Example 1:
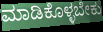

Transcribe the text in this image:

ಮಾಡಿಕೊಳ್ಳಬೇಕು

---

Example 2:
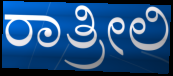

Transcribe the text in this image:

ರಾತ್ರೀಲಿ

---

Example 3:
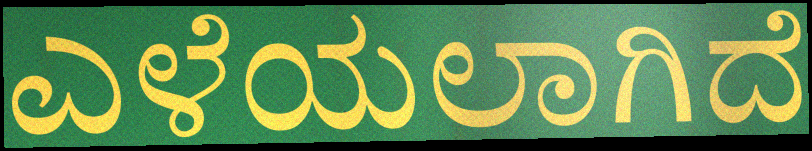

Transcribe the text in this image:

ಎಳೆಯಲಾಗಿದೆ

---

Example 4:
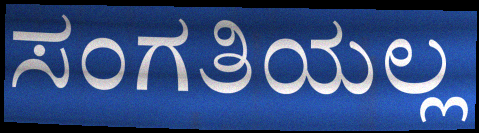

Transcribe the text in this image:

ಸಂಗತಿಯಲ್ಲ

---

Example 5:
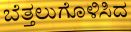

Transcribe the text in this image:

ಬೆತ್ತಲುಗೊಳಿಸಿದ